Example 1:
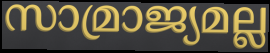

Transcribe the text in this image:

സാമ്രാജ്യമല്ല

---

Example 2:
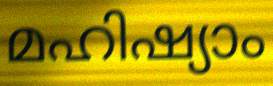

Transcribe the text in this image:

മഹിഷ്യാം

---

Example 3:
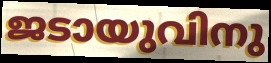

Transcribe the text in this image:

ജടായുവിനു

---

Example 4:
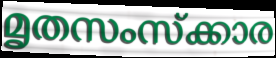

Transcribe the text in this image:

മൃതസംസ്‌ക്കാര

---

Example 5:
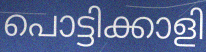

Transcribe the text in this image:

പൊട്ടിക്കാളി